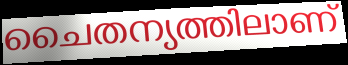
ചൈതന്യത്തിലാണ്